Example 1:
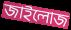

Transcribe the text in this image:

জাইলোজ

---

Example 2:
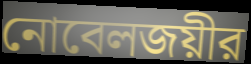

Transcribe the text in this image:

নোবেলজয়ীর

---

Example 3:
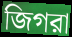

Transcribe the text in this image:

জিগরা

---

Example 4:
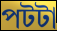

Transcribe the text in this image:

পটটা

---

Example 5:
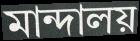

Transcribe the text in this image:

মান্দালয়